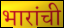
भारांची